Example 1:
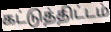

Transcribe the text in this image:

கட்டுத்திட்டம்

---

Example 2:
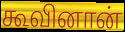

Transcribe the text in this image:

கூவினான்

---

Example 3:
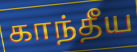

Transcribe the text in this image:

காந்தீய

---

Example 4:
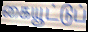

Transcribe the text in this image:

கையூட்டுப்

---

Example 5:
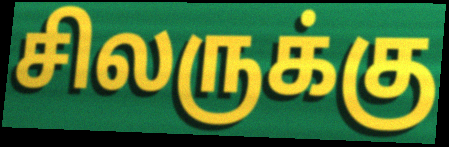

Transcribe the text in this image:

சிலருக்கு